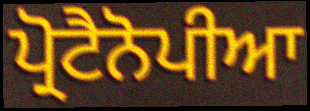
ਪ੍ਰੋਟੈਨੋਪੀਆ